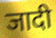
जादी